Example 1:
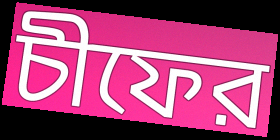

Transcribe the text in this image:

চীফের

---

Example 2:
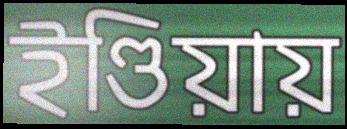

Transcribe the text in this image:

ইণ্ডিয়ায়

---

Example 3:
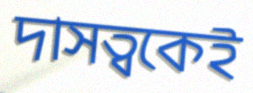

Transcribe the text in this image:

দাসত্বকেই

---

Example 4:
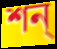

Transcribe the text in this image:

শন্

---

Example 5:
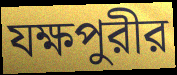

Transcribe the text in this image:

যক্ষপুরীর